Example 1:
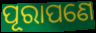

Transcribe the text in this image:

ପୂରାପଣେ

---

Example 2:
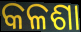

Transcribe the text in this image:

କଳଶା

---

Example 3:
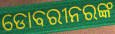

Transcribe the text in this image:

ଡୋବରୀନରଙ୍କ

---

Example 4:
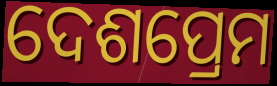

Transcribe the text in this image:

ଦେଶପ୍ରେମ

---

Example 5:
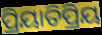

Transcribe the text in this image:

ପ୍ରିୟାତିପ୍ରିୟ